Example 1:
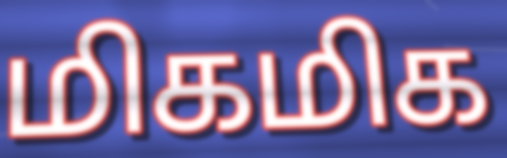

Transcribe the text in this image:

மிகமிக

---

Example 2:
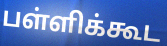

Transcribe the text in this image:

பள்ளிக்கூட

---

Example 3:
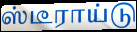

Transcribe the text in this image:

ஸ்டீராய்டு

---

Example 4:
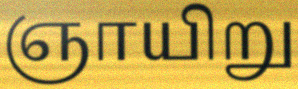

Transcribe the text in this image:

ஞாயிறு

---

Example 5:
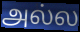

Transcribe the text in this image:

அல்ல